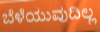
ಬೆಳೆಯುವುದಿಲ್ಲ